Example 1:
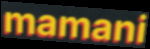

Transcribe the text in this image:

mamani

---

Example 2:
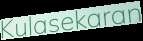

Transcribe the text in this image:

Kulasekaran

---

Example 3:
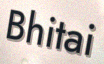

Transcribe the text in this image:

Bhitai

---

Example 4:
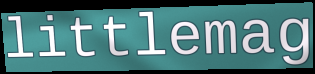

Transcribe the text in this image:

littlemag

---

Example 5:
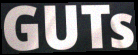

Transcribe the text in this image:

GUTs